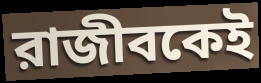
রাজীবকেই